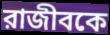
রাজীবকে